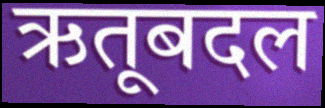
ऋतूबदल